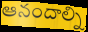
ఆనందాల్ని